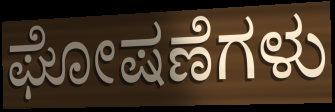
ಘೋಷಣೆಗಳು